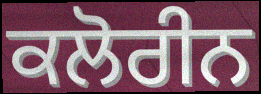
ਕਲੋਰੀਨ